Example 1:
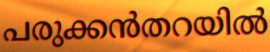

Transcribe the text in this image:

പരുക്കൻതറയിൽ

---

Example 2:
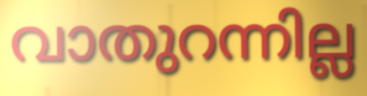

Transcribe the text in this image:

വാതുറന്നില്ല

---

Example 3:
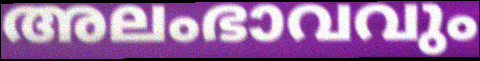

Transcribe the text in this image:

അലംഭാവവും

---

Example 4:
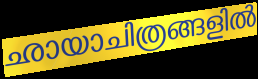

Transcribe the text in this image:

ഛായാചിത്രങ്ങളിൽ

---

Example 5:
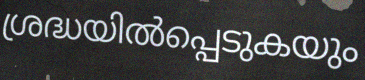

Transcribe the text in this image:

ശ്രദ്ധയിൽപ്പെടുകയും